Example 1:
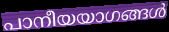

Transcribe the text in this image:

പാനീയയാഗങ്ങൾ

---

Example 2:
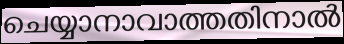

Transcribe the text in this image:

ചെയ്യാനാവാത്തതിനാൽ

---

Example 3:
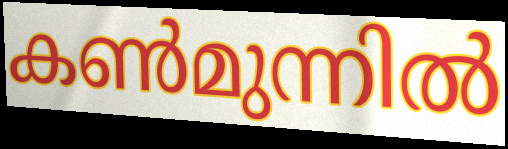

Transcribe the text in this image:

കൺമുന്നിൽ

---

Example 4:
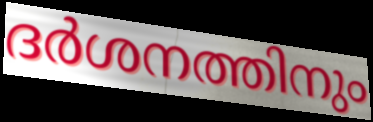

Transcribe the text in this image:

ദർശനത്തിനും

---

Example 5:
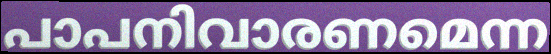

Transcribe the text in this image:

പാപനിവാരണമെന്ന